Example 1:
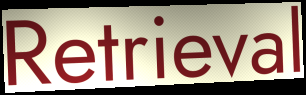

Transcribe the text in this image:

Retrieval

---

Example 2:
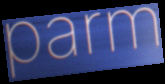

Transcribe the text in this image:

parm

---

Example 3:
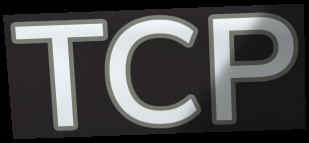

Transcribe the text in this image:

TCP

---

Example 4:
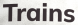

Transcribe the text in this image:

Trains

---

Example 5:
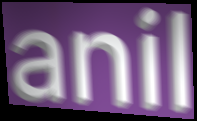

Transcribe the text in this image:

anil